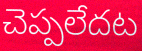
చెప్పలేదట